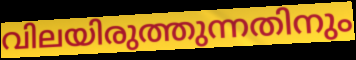
വിലയിരുത്തുന്നതിനും